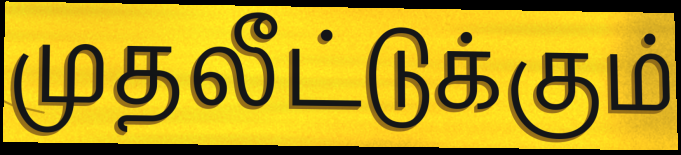
முதலீட்டுக்கும்